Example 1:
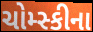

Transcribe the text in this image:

ચોમ્સ્કીના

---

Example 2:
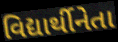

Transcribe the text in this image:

વિદ્યાર્થીનેતા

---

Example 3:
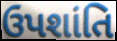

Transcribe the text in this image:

ઉપશાંતિ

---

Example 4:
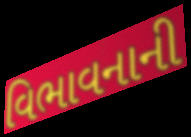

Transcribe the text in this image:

વિભાવનાની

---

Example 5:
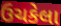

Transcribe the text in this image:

ઉચકેલા